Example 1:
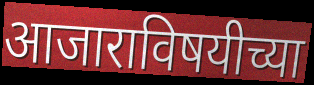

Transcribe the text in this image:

आजाराविषयीच्या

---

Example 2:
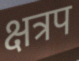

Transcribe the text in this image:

क्षत्रप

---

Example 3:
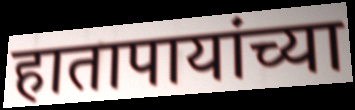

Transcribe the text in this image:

हातापायांच्या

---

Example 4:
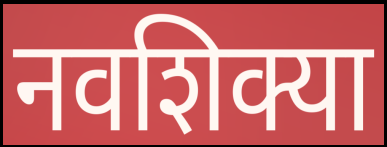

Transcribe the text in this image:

नवशिक्या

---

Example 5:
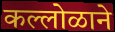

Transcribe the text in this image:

कल्लोळाने